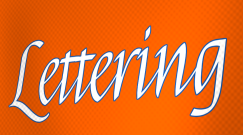
Lettering